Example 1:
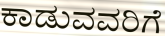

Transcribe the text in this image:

ಕಾಡುವವರಿಗೆ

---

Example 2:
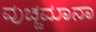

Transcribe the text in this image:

ವುಚ್ಚಮಾನಾ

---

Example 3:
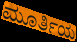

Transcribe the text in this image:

ಮೂರ್ತಿಯ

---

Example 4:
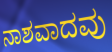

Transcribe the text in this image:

ನಾಶವಾದವು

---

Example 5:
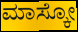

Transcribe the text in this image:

ಮಾಸ್ಕೋ